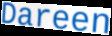
Dareen